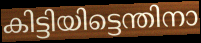
കിട്ടിയിട്ടെന്തിനാ